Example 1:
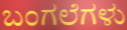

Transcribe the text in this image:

ಬಂಗಲೆಗಳು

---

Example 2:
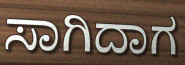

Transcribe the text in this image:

ಸಾಗಿದಾಗ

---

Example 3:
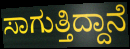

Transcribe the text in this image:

ಸಾಗುತ್ತಿದ್ದಾನೆ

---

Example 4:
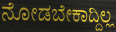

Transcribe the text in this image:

ನೋಡಬೇಕಾದ್ದಿಲ್ಲ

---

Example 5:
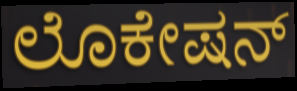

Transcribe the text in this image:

ಲೊಕೇಷನ್